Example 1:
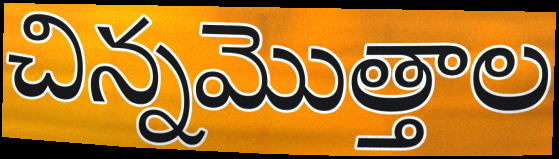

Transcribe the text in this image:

చిన్నమొత్తాల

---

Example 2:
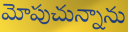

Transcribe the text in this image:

మోపుచున్నాను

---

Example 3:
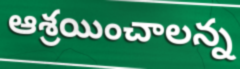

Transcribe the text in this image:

ఆశ్రయించాలన్న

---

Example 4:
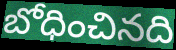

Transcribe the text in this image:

బోధించినది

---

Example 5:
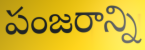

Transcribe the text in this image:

పంజరాన్ని